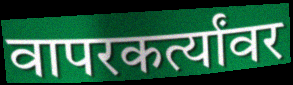
वापरकर्त्यांवर